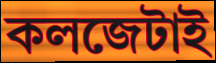
কলজেটাই